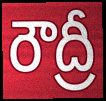
రౌద్రీ